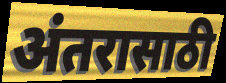
अंतरासाठी